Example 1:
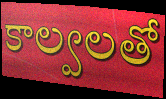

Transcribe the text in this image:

కాల్వలతో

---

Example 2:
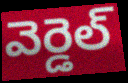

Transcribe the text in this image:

వెర్డెల్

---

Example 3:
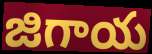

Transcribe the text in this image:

జిగాయ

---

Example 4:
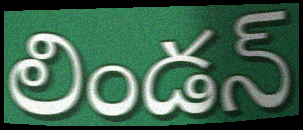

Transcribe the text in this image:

లిండన్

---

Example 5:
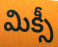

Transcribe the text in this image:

మిక్సీ